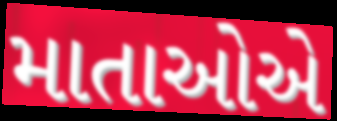
માતાઓએ